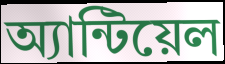
অ্যান্টিয়েল